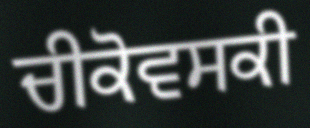
ਚੀਕੋਵਸਕੀ